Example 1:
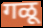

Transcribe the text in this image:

गळू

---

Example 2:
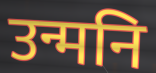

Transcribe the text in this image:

उन्मनि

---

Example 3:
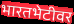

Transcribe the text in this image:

भारतभेटीवर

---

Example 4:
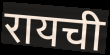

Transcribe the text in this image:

रायची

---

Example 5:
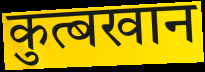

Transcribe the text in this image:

कुत्बखान